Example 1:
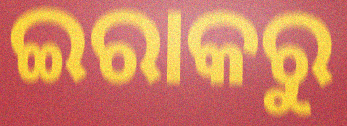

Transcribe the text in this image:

ଇରାକରୁ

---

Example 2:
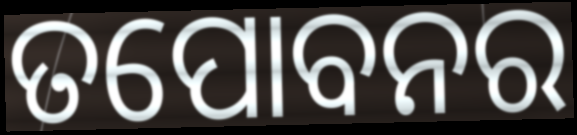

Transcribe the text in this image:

ତପୋବନର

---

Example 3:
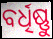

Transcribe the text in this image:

ବର୍ଧିଷ୍ଣୁ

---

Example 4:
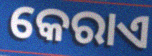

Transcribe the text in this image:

କେରାଏ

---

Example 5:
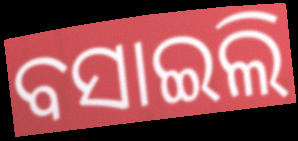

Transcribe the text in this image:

ବସାଇଲି